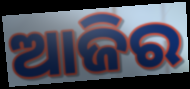
ଆଜିର